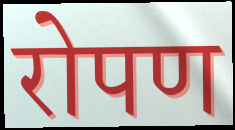
रोपण